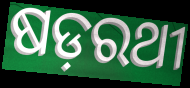
ଷଡ଼ରଥୀ